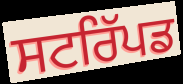
ਸਟਰਿੱਪਡ